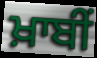
ਖ਼ਾਬੀਂ